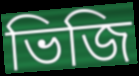
ভিজি